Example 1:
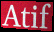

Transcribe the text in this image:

Atif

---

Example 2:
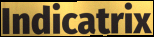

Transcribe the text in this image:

Indicatrix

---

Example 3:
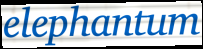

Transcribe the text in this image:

elephantum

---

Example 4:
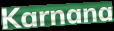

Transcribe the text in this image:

Karnana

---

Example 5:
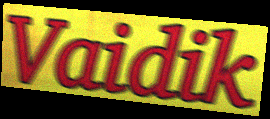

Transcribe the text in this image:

Vaidik